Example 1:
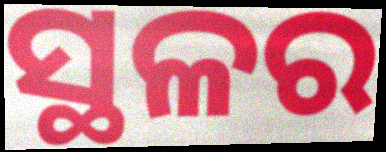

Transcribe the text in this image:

ସ୍ଥଳର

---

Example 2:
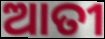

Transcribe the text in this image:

ଆତୀ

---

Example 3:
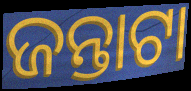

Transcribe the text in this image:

ଜନ୍ତାଟା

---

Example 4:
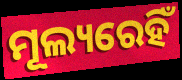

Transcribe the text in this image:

ମୂଲ୍ୟରେହିଁ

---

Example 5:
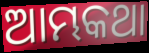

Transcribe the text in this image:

ଆମ୍ଭକଥା